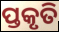
ପ୍ତକୃତି